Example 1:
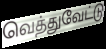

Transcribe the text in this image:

வெத்துவேட்டு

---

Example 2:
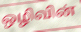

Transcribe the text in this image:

ஒழிவின்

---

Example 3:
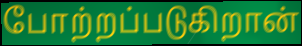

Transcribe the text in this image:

போற்றப்படுகிறான்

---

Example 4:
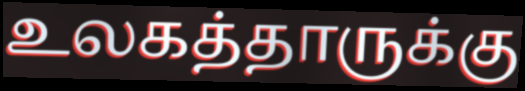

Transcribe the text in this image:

உலகத்தாருக்கு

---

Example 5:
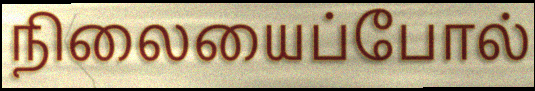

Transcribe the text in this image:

நிலையைப்போல்